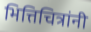
भित्तिचित्रांनी